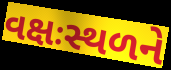
વક્ષઃસ્થળને